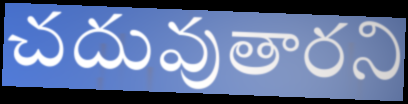
చదువుతారని